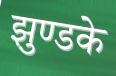
झुण्डके